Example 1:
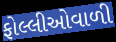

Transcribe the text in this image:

ફોલ્લીઓવાળી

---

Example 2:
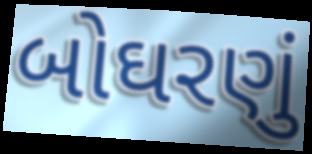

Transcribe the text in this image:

બોઘરણું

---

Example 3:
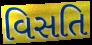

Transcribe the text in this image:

વિસતિ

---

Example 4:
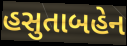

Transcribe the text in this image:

હસુતાબહેન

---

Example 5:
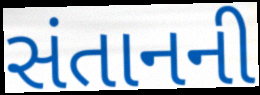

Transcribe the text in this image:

સંતાનની